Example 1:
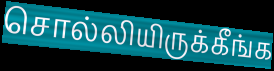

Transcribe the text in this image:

சொல்லியிருக்கீங்க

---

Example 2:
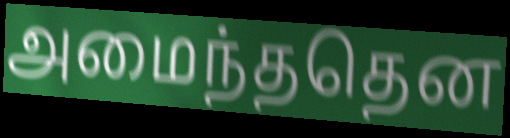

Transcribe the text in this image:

அமைந்ததென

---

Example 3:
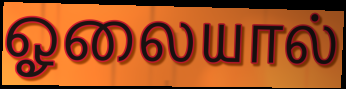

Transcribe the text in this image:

ஓலையால்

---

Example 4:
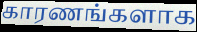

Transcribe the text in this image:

காரணங்களாக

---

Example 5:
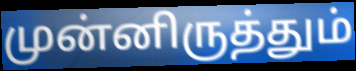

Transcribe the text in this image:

முன்னிருத்தும்